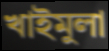
খাইমুলা